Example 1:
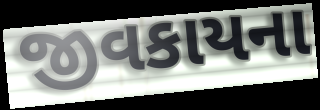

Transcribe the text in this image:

જીવકાયના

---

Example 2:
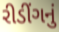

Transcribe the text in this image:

રીડીંગનું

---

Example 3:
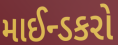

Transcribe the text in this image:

માઈન્ડકરો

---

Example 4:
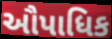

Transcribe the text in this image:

ઔપાધિક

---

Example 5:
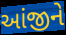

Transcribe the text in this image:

આંજીને